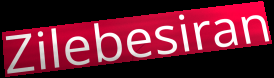
Zilebesiran